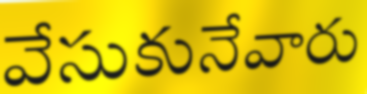
వేసుకునేవారు